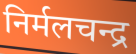
निर्मलचन्द्र